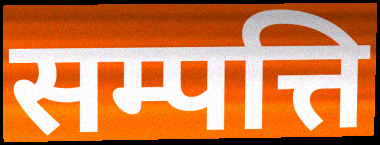
सम्पत्ति